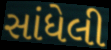
સાંધેલી